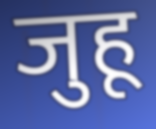
जुहू